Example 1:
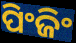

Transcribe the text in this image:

ପିଂଜିଂ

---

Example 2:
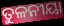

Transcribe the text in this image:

ତୁଳନୀୟା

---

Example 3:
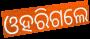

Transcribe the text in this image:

ଓହରିଗଲେ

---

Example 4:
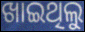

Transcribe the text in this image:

ଖାଇଥିଲୁ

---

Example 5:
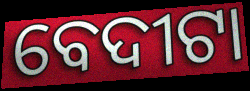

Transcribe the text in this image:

ବେଦୀଟା